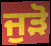
ਜੁੜੋ